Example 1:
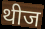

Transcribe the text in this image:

थीज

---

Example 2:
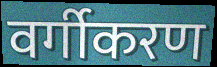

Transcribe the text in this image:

वर्गीकरण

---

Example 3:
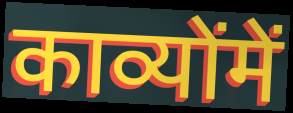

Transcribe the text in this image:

काव्योंमें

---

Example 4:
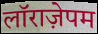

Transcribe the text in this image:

लॉराज़ेपम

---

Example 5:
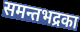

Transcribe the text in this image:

समन्तभद्रका